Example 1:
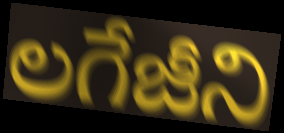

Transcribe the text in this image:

లగేజీని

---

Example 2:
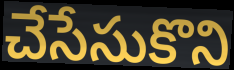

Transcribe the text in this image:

చేసేసుకొని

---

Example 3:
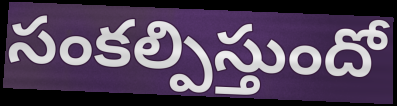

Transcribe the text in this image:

సంకల్పిస్తుందో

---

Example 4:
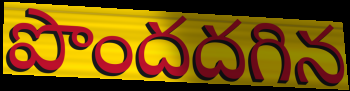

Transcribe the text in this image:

పొందదగిన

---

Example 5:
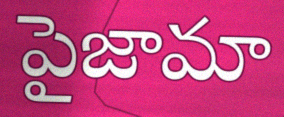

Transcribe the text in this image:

పైజామా